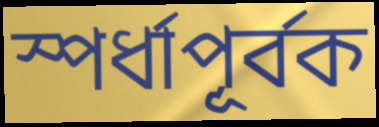
স্পর্ধাপূর্বক